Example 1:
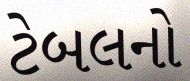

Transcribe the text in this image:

ટેબલનો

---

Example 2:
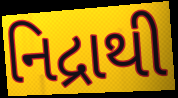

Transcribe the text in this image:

નિદ્રાથી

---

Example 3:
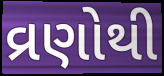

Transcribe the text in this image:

વ્રણોથી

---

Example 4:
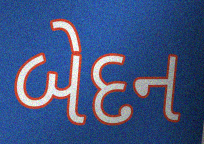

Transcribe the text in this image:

બેદન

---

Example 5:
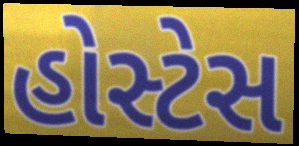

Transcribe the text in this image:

હોસ્ટેસ